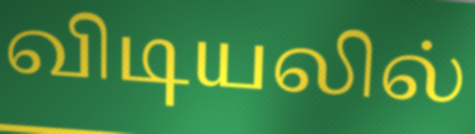
விடியலில்